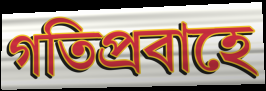
গতিপ্রবাহে